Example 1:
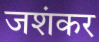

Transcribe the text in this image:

जशंकर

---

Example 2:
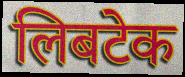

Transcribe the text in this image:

लिबटेक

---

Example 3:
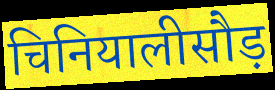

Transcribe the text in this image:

चिनियालीसौड़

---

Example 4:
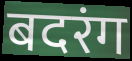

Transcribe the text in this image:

बदरंग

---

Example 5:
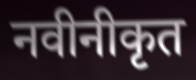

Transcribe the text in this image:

नवीनीकृत